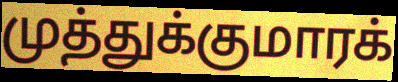
முத்துக்குமாரக்